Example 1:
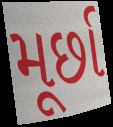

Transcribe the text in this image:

મૂર્છા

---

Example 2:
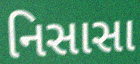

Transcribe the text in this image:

નિસાસા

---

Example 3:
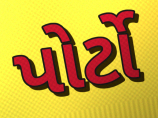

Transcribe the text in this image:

પોર્ટો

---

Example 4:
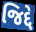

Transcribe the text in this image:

જિદ્દે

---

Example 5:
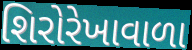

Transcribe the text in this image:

શિરોરેખાવાળા